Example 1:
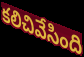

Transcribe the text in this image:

కలిచివేసింది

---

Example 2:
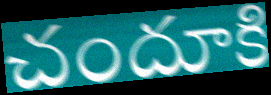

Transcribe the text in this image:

చందూకి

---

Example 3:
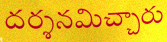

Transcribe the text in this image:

దర్శనమిచ్చారు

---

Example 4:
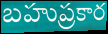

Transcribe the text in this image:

బహుప్రకార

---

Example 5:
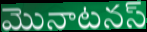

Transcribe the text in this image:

మొనాటనస్